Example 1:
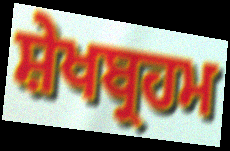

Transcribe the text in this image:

ਸ਼ੇਖਬ੍ਰਹਮ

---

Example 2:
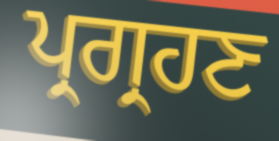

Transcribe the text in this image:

ਪ੍ਰਗ੍ਰਹਣ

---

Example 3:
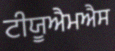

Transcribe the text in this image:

ਟੀਯੂਐਮਐਸ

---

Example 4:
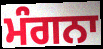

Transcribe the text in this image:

ਮੰਗਨਾ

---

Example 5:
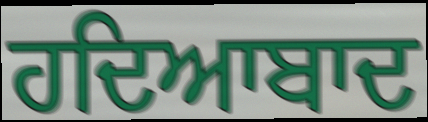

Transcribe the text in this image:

ਹਦਿਆਬਾਦ